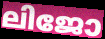
ലിജോ